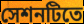
সেশনটিতে